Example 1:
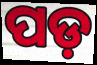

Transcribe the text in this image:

ପଡ଼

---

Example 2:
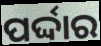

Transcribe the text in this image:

ପର୍ଦ୍ଦାର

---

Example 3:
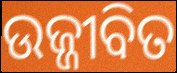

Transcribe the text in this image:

ଉଜ୍ଜୀବିତ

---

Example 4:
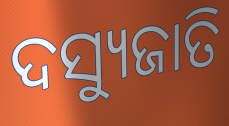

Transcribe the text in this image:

ଦସ୍ୟୁଜାତି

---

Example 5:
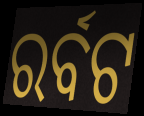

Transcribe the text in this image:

ରର୍ବଟ